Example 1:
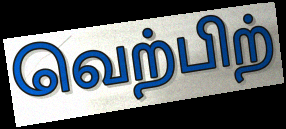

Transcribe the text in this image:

வெற்பிற்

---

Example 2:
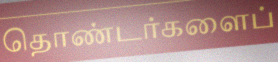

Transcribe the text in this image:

தொண்டர்களைப்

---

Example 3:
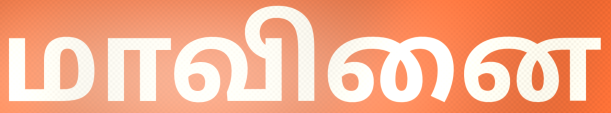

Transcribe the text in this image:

மாவினை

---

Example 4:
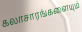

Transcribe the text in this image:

கலாசாரங்களையும்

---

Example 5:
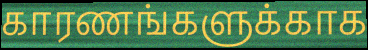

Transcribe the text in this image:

காரணங்களுக்காக